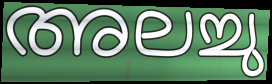
അലച്ചു